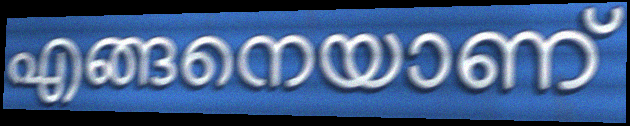
എങ്ങനെയാണ്